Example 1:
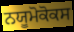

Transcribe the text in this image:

ਨਯੂਮੋਕੋਕਸ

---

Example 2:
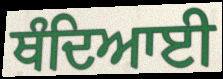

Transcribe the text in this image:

ਥੰਦਿਆਈ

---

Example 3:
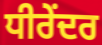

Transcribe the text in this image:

ਧੀਰੇਂਦਰ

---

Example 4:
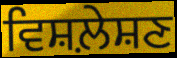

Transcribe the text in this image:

ਵਿਸ਼ਲ਼ੇਸ਼ਣ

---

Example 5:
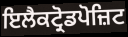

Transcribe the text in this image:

ਇਲੈਕਟ੍ਰੋਡਪੋਜ਼ਿਟ